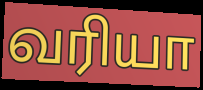
வரியா